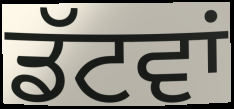
ਡੱਟਵਾਂ